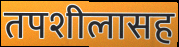
तपशीलासह